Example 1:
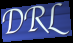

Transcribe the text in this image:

DRL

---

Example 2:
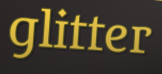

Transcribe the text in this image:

glitter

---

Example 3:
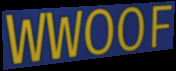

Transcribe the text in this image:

WWOOF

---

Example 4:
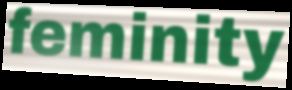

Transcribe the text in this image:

feminity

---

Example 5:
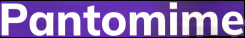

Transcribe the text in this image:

Pantomime